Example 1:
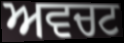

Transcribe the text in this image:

ਅਵਚਟ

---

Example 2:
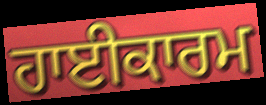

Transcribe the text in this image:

ਹਾਈਕਾਰਮ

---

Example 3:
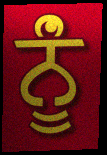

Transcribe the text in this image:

ਨੂਂੰ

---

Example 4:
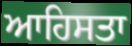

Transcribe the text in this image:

ਆਹਿਸਤਾ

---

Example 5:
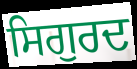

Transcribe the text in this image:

ਸਿਗੁਰਦ